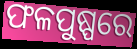
ଫଳପୁଷ୍ପରେ